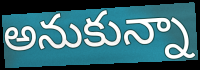
అనుకున్నా